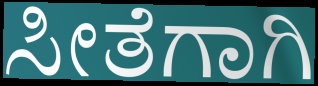
ಸೀತೆಗಾಗಿ